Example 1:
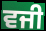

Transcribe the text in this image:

ਵਜੀ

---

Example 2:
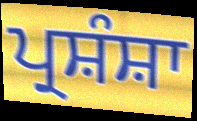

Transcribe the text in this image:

ਪ੍ਰਸ਼ੰਸ਼ਾ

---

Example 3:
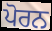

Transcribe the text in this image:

ਪੋਰਨ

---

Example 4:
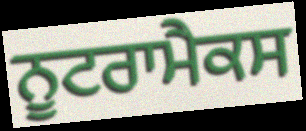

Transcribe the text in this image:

ਨੂਟਰਾਮੈਕਸ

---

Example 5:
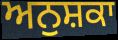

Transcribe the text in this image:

ਅਨੁਸ਼ਕਾ